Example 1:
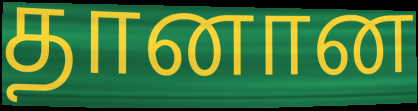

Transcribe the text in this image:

தானான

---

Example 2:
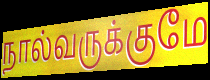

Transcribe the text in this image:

நால்வருக்குமே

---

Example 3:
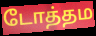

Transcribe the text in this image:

டோத்தம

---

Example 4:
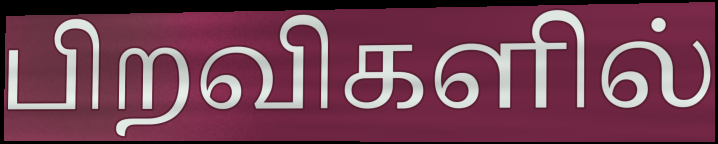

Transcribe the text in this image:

பிறவிகளில்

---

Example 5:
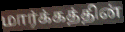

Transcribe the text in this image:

மார்க்கத்தின்